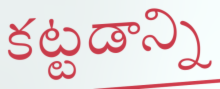
కట్టడాన్ని